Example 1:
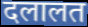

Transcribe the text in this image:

दलालत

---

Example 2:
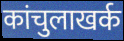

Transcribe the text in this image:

कांचुलाखर्क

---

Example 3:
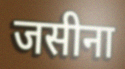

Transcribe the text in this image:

जसीना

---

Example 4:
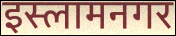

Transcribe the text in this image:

इस्लामनगर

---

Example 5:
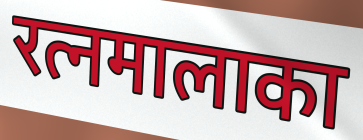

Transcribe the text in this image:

रत्नमालाका